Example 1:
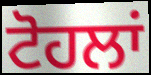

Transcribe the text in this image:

ਟੋਹਲਾਂ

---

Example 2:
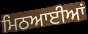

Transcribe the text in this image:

ਮਿਠਆਈਆਂ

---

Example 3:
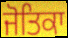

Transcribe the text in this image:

ਜੋਤਿਕਾ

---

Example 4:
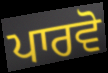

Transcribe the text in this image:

ਪਾਰਵੋ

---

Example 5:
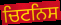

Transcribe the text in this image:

ਚਿਟਨਿਸ